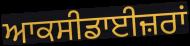
ਆਕਸੀਡਾਈਜ਼ਰਾਂ